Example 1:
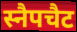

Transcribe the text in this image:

स्नैपचैट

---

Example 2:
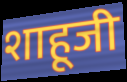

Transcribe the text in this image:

शाहूजी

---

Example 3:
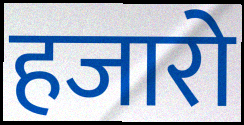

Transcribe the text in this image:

हजारो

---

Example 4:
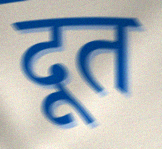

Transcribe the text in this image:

दूत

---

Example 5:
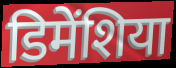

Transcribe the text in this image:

डिमेंशिया